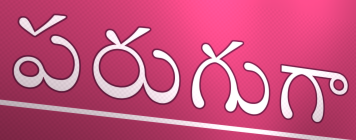
పరుగుగా